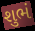
શુભં